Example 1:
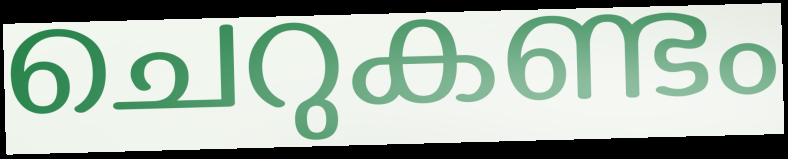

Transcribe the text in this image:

ചെറുകണ്ടം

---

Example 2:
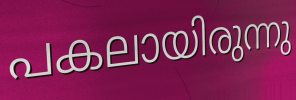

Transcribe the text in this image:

പകലായിരുന്നു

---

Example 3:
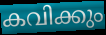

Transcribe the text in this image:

കവിക്കും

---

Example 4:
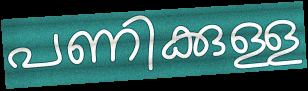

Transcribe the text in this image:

പണിക്കുള്ള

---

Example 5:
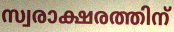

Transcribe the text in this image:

സ്വരാക്ഷരത്തിന്